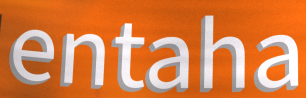
entaha